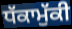
ਧੱਕਾਮੁੱਕੀ